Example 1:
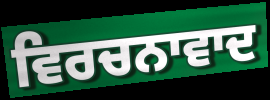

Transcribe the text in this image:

ਵਿਰਚਨਾਵਾਦ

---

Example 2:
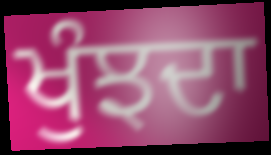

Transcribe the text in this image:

ਖੁੰਝਦਾ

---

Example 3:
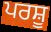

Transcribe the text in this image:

ਪਰਸ਼ੂ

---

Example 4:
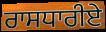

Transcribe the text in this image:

ਰਾਸਧਾਰੀਏ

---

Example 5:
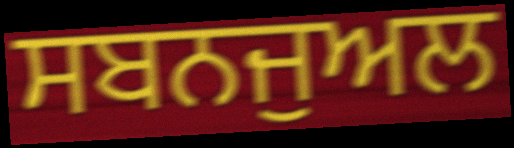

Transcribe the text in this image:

ਸਬਨਜੁਅਲ